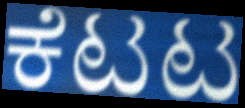
ಕೆಟಟ